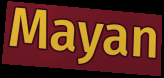
Mayan